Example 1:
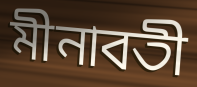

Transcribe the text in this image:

মীনাবতী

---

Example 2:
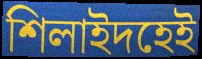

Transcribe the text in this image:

শিলাইদহেই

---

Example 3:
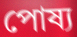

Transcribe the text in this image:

পোষ্য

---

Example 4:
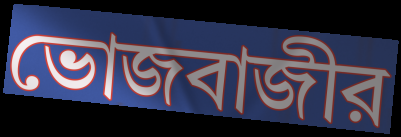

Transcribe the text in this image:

ভোজবাজীর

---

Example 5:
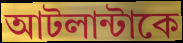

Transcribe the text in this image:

আটলান্টাকে